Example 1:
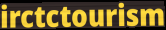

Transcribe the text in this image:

irctctourism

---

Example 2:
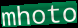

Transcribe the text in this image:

mhoto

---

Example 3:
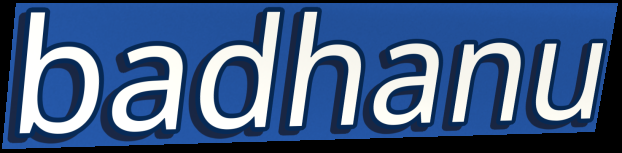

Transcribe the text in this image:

badhanu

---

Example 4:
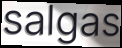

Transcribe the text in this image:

salgas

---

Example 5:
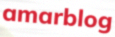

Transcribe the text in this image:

amarblog